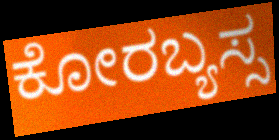
ಕೋರಬ್ಯಸ್ಸ